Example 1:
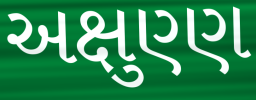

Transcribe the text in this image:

અક્ષુણ્ણ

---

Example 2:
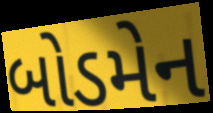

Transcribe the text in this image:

બોડમેન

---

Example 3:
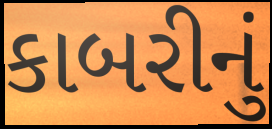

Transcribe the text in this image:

કાબરીનું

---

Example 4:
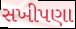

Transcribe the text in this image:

સખીપણા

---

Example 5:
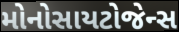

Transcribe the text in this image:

મોનોસાયટોજેન્સ